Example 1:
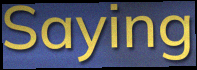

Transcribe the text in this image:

Saying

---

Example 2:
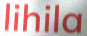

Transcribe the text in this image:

lihila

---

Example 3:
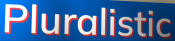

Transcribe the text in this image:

Pluralistic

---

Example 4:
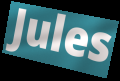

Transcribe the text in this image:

Jules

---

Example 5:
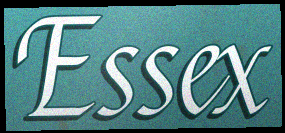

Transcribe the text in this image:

Essex